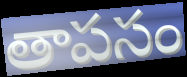
తాపసం